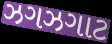
ઝગઝગાટ